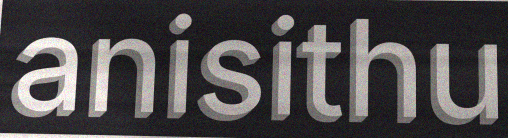
anisithu